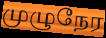
முழுநேர